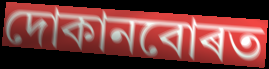
দোকানবোৰত